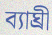
ব্যাঘ্ৰী